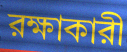
রক্ষাকারী